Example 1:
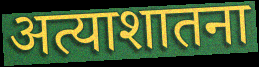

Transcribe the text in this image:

अत्याशातना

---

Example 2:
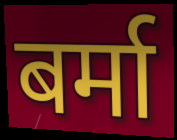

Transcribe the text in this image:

बर्मा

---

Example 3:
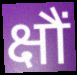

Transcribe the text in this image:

क्षौं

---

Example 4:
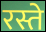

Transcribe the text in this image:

रस्ते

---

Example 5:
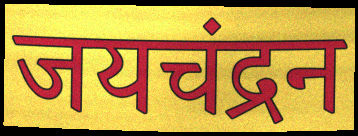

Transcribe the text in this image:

जयचंद्रन